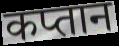
कप्तान